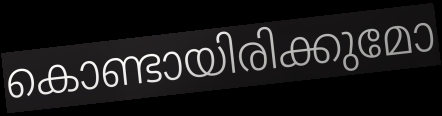
കൊണ്ടായിരിക്കുമോ